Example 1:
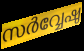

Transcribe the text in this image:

സർവ്വേഷു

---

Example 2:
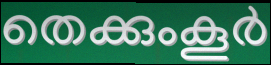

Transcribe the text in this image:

തെക്കുംകൂർ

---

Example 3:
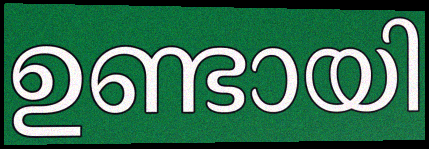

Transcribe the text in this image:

ഉണ്ടായി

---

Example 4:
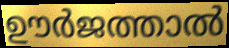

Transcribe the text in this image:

ഊർജത്താൽ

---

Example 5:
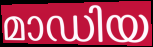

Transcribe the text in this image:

മാഡിയ